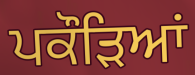
ਪਕੌਡ਼ਿਆਂ